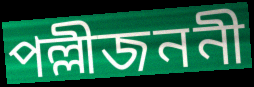
পল্লীজননী